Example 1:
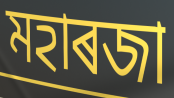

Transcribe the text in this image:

মহাৰজা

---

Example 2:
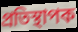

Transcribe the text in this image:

প্ৰতিস্থাপক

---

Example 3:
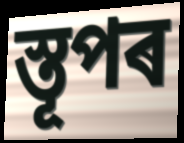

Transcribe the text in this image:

স্তূপৰ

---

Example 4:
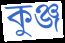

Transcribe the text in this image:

কুঞ্জ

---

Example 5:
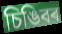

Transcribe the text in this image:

চিঙিবৰ